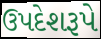
ઉપદેશરૂપે